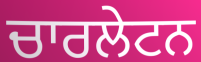
ਚਾਰਲੇਟਨ